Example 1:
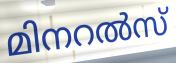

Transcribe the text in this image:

മിനറൽസ്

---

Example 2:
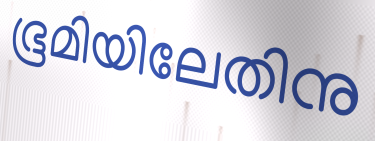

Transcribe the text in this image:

ഭൂമിയിലേതിനു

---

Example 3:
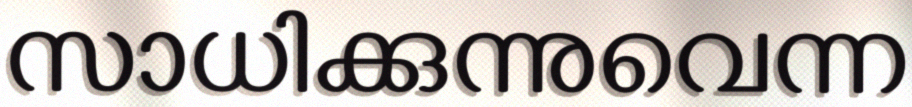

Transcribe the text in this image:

സാധിക്കുന്നുവെന്ന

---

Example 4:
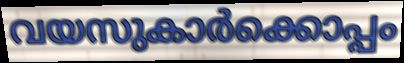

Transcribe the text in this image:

വയസുകാർക്കൊപ്പം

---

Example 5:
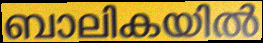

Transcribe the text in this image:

ബാലികയിൽ